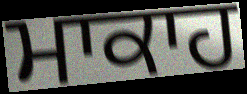
ਮਾਕਾਹ